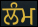
ਲੰਮ